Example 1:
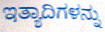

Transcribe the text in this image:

ಇತ್ಯಾದಿಗಳನ್ನು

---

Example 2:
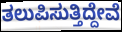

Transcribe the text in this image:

ತಲುಪಿಸುತ್ತಿದ್ದೇವೆ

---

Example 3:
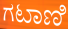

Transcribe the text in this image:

ಗಟಾಣಿ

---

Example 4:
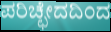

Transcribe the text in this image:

ಪರಿಚ್ಛೇದದಿಂದ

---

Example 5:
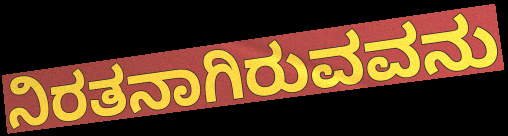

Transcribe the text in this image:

ನಿರತನಾಗಿರುವವನು